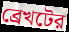
ব্রেখটের